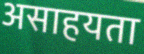
असाहयता